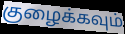
குழைக்கவும்